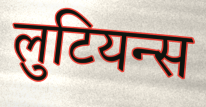
लुटियन्स